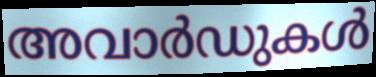
അവാർഡുകൾ